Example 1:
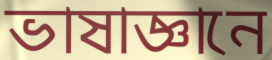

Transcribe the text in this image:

ভাষাজ্ঞানে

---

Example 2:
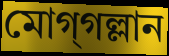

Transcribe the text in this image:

মোগ্‌গল্লান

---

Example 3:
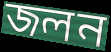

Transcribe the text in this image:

জলন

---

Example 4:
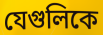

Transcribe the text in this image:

যেগুলিকে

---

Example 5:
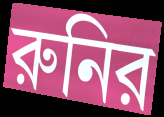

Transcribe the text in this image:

রুনির